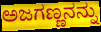
ಅಜಗಣ್ಣನನ್ನು